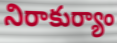
నిరాకుర్యాం